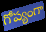
గోప్యంగా